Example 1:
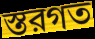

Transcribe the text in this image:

স্তরগত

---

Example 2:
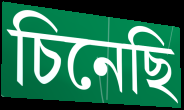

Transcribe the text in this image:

চিনেছি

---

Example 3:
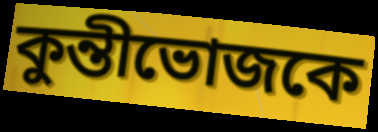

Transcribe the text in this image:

কুন্তীভোজকে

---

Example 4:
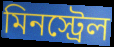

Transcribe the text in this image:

মিনস্ট্রেল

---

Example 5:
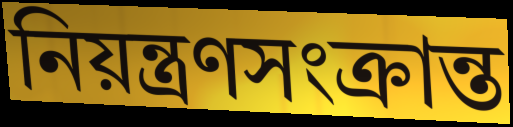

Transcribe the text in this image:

নিয়ন্ত্রণসংক্রান্ত